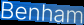
Benham